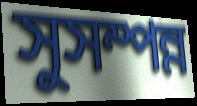
সুসম্পন্ন